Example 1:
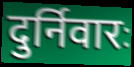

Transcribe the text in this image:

दुर्निवारः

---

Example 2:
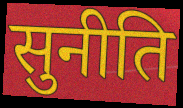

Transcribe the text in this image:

सुनीति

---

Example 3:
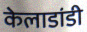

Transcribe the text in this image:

केलाडांडी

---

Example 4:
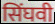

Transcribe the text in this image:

सिंघवी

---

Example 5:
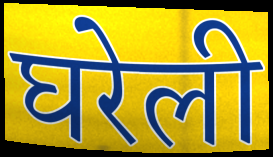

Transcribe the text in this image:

घरेली